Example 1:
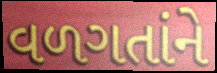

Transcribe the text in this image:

વળગતાંને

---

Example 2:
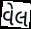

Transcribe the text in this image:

વેલ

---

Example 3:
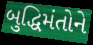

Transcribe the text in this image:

બુદ્ધિમંતોને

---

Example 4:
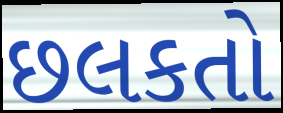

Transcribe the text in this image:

છલકતો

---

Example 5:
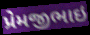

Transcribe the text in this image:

પ્રેમજીભાઇ